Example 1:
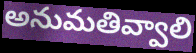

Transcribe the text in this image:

అనుమతివ్వాలి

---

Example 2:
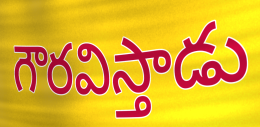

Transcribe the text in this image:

గౌరవిస్తాడు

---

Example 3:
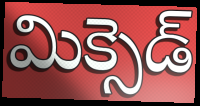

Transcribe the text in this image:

మిక్సెడ్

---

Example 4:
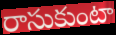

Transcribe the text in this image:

రాసుకుంటా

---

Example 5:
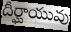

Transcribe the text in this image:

దీర్ఘాయువు